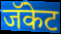
जॅकेट